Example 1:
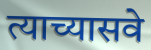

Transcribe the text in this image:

त्याच्यासवे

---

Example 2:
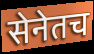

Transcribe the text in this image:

सेनेतच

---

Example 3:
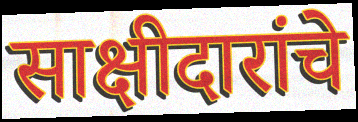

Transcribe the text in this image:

साक्षीदारांचे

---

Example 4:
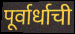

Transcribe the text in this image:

पूर्वार्धाची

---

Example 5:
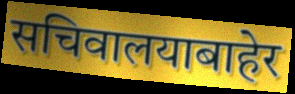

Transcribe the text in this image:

सचिवालयाबाहेर